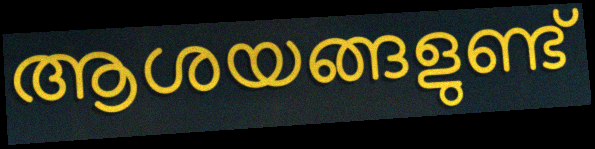
ആശയങ്ങളുണ്ട്